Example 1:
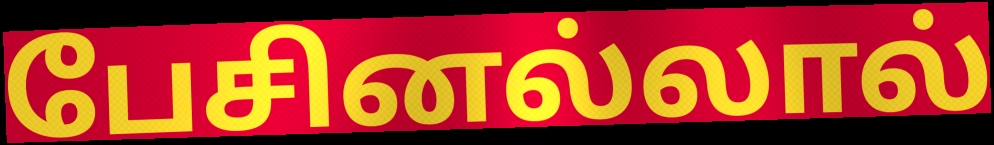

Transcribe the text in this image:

பேசினல்லால்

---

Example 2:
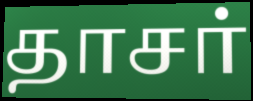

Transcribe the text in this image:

தாசர்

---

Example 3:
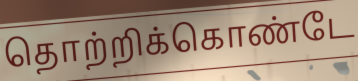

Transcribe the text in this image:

தொற்றிக்கொண்டே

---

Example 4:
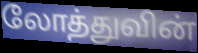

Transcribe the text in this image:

லோத்துவின்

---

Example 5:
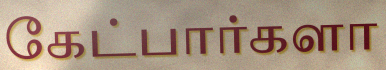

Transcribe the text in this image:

கேட்பார்களா